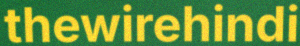
thewirehindi